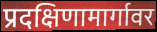
प्रदक्षिणामार्गावर